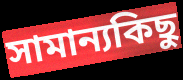
সামান্যকিছু